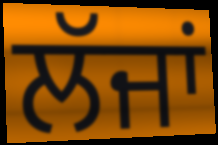
ਲੱਜਾਂ